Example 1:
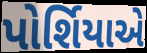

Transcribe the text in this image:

પોર્શિયાએ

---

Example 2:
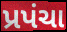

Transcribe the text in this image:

પ્રપંચા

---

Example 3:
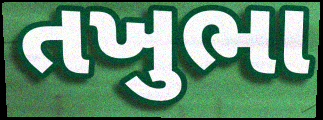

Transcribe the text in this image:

તખુભા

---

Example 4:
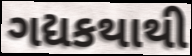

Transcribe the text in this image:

ગદ્યકથાથી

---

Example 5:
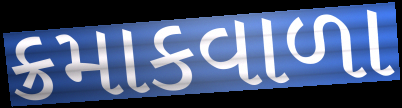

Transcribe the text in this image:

ક્રમાકવાળા